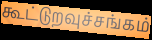
கூட்டுறவுச்சங்கம்